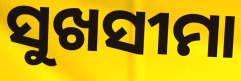
ସୁଖସୀମା